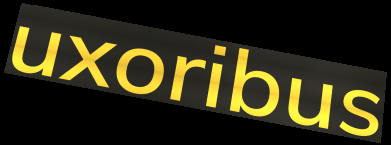
uxoribus